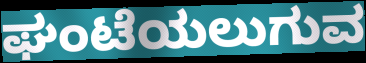
ಘಂಟೆಯಲುಗುವ